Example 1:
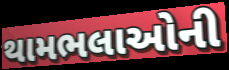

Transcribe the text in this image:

થામભલાઓની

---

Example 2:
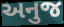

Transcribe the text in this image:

અનુજ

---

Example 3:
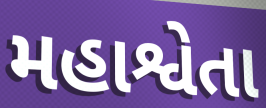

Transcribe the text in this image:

મહાશ્વેતા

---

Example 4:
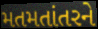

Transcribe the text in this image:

મતમતાંતરને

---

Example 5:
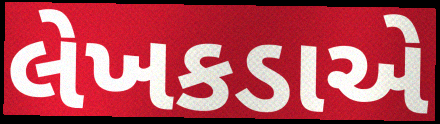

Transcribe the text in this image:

લેખકડાએ